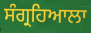
ਸੰਗ੍ਰਹਿਆਲਾ